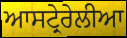
ਆਸਟ੍ਰੇਰੇਲੀਆ